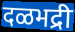
दळभद्री